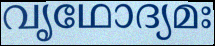
വൃഥോദ്യമഃ